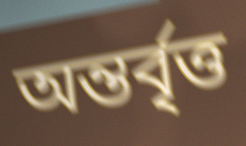
অন্তৰ্বৃত্ত